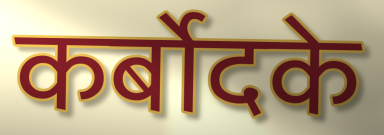
कर्बोदके